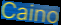
Caino